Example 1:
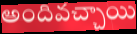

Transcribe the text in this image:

అందివచ్చాయి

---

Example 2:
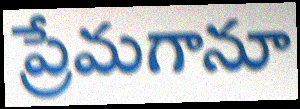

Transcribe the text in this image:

ప్రేమగానూ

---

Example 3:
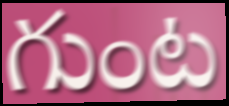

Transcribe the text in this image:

గుంట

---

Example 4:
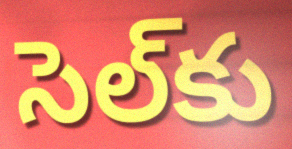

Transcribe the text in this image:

సెల్‌కు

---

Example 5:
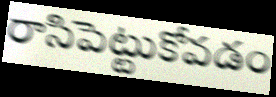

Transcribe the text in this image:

రాసిపెట్టుకోవడం